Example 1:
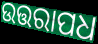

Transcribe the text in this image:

ଉତ୍ତରାପଧ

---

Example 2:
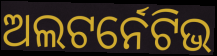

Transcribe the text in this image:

ଅଲଟର୍ନେଟିଭ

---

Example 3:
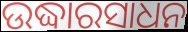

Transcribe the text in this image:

ଉଦ୍ଧାରସାଧନ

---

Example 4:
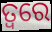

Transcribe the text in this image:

ତ୍ଵରେ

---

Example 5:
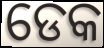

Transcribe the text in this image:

ଡେକ